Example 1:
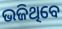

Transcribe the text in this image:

ଭଜିଥିବେ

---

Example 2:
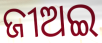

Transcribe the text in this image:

ଜୀଅଇ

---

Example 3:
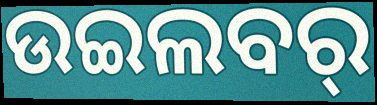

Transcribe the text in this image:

ଉଇଲବର୍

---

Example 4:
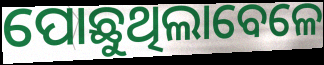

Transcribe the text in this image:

ପୋଛୁଥିଲାବେଳେ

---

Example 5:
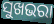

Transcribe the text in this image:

ସୁଖଭରା